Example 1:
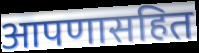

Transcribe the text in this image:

आपणासहित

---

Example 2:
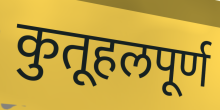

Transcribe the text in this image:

कुतूहलपूर्ण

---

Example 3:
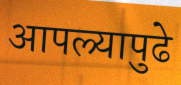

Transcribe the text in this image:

आपल्यापुढे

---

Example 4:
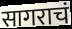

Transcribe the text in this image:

सागराचं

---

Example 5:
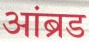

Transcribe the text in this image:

आंब्रड